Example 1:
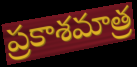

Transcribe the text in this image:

ప్రకాశమాత్ర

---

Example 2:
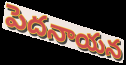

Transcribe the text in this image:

పెదనాయన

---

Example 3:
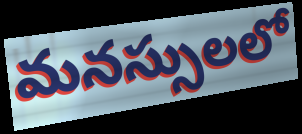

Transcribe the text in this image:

మనస్సులలో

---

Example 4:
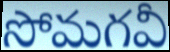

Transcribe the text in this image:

సోమగవీ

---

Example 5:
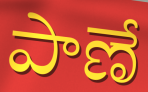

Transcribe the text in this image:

పాణే